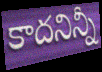
కాదనిన్నీ